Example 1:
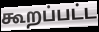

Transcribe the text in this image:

கூறப்பட்ட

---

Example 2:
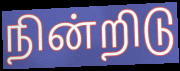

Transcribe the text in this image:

நின்றிடு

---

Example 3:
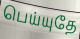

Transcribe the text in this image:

பெய்யுதே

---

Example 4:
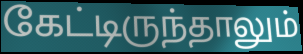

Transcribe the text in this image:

கேட்டிருந்தாலும்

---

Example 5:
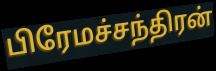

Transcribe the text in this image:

பிரேமச்சந்திரன்